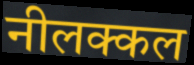
नीलक्कल